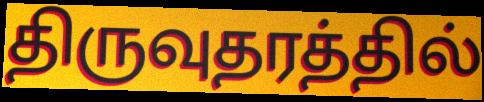
திருவுதரத்தில்